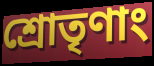
শ্রোতৃণাং